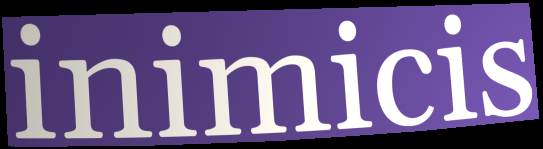
inimicis